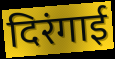
दिरंगाई